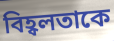
বিহ্বলতাকে